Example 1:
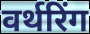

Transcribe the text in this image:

वर्थरिंग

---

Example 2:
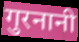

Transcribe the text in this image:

गुरनानी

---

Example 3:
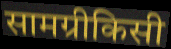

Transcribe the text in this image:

सामग्रीकिसी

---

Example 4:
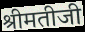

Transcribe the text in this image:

श्रीमतीजी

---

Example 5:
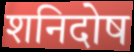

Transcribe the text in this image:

शनिदोष